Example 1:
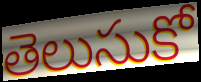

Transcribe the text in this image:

తెలుసుకో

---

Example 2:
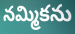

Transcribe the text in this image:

నమ్మికను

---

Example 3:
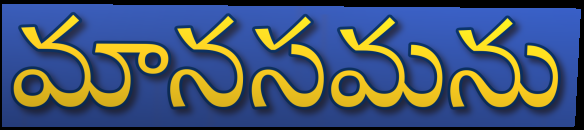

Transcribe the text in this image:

మానసమను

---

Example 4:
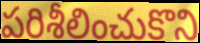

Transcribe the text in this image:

పరిశీలించుకొని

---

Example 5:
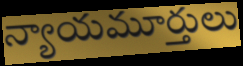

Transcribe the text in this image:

న్యాయమూర్తులు